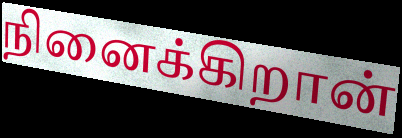
நினைக்கிறான்